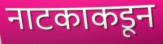
नाटकाकडून